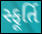
સ્ફૂર્તિ